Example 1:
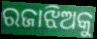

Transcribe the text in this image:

ରଜାଝିଅକୁ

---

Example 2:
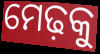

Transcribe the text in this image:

ମେଢ଼କୁ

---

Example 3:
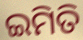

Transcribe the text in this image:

ଇମିତି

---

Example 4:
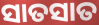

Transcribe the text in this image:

ସାତସାତ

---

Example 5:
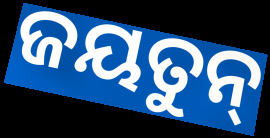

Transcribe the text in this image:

ଜୟତୁନ୍